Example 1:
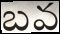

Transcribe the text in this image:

బవ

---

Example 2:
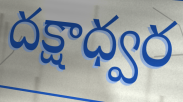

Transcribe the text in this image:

దక్షాధ్వర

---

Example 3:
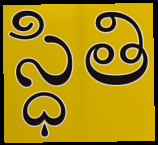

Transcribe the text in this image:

స్ధితి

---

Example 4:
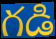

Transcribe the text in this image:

గడి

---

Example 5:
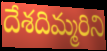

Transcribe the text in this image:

దేశదిమ్మరిని